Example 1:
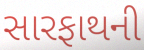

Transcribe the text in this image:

સારફાથની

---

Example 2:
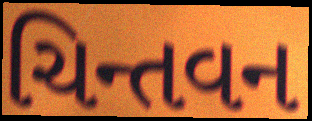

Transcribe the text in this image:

ચિન્તવન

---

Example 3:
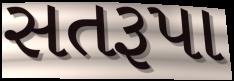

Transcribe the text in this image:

સતરૂપા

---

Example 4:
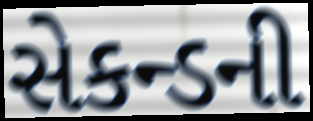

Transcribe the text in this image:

સેકન્ડની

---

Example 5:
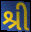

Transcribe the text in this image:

શ્રી